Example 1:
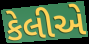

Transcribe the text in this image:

કેલીએ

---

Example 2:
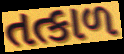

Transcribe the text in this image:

તત્કાળ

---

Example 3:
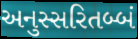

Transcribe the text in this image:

અનુસ્સરિતબ્બં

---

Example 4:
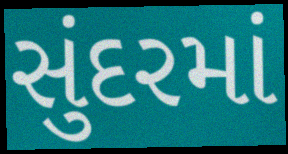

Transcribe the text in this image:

સુંદરમાં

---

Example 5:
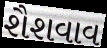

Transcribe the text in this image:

શૈશવાવ